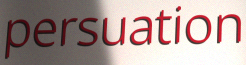
persuation